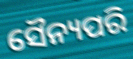
ସୈନ୍ୟପରି